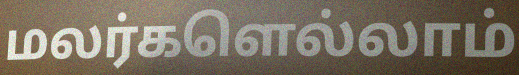
மலர்களெல்லாம்